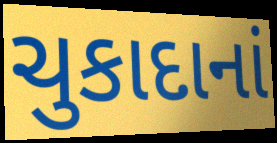
ચુકાદાનાં